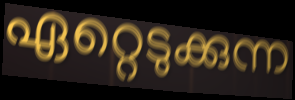
ഏറ്റെടുക്കുന്ന